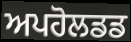
ਅਪਹੋਲਡਡ